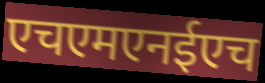
एचएमएनईएच